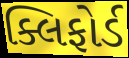
ક્લિફોર્ડ